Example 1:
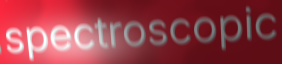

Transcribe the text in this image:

spectroscopic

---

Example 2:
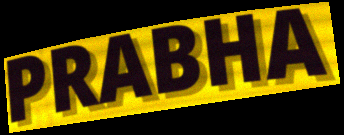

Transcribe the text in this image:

PRABHA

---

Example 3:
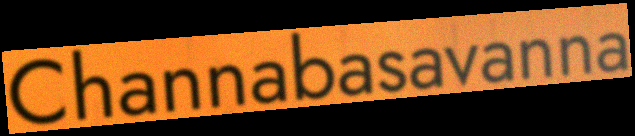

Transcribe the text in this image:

Channabasavanna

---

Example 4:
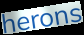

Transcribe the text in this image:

herons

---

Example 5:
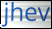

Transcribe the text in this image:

jhev